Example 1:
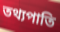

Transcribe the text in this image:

তথ্যপাতি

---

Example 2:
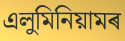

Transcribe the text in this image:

এলুমিনিয়ামৰ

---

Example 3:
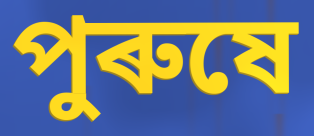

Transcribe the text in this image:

পুৰুষে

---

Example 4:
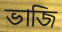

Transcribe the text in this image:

ভাজি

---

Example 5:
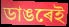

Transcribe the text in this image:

ডাঙৰেই